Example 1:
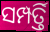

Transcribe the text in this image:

ସମ୍ପର୍ତ୍ତି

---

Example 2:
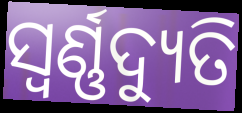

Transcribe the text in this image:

ସ୍ୱର୍ଣ୍ଣଦ୍ୟୁତି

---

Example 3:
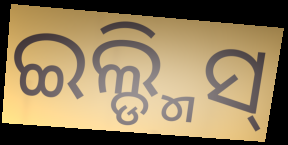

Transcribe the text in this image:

ଇଲ୍ଡ୍ମିସ୍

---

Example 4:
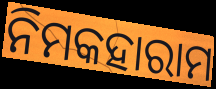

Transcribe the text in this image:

ନିମକହାରାମ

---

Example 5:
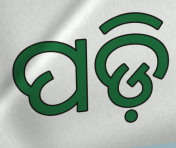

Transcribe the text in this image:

ପଡ଼ି